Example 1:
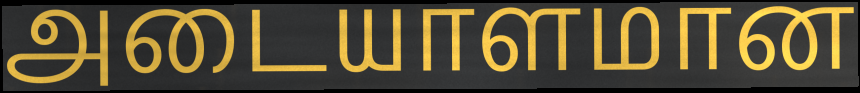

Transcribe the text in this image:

அடையாளமான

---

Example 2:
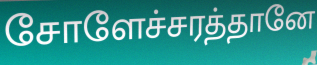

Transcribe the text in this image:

சோளேச்சரத்தானே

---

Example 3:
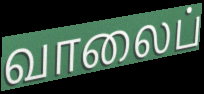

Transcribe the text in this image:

வாலைப்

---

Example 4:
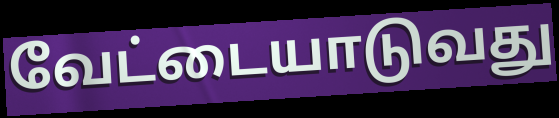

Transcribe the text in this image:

வேட்டையாடுவது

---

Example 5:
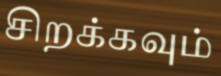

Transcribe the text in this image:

சிறக்கவும்